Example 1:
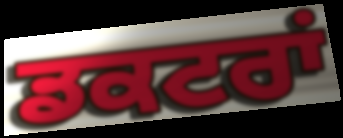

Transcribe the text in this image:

ਡਕਟਰਾਂ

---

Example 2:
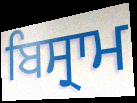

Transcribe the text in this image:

ਬਿਸ੍ਰਾਮ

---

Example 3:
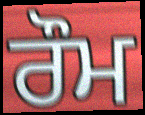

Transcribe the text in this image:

ਰੌਮ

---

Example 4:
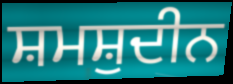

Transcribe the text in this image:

ਸ਼ਮਸ਼ੁਦੀਨ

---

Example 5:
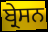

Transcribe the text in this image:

ਬ੍ਰੇਸਨ